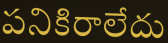
పనికిరాలేదు